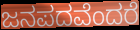
ಜನಪದವೆಂದರೆ